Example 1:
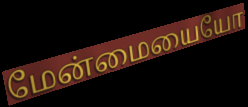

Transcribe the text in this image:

மேன்மையையோ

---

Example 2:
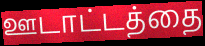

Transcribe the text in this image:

ஊடாட்டத்தை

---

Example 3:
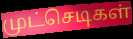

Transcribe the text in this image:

முட்செடிகள்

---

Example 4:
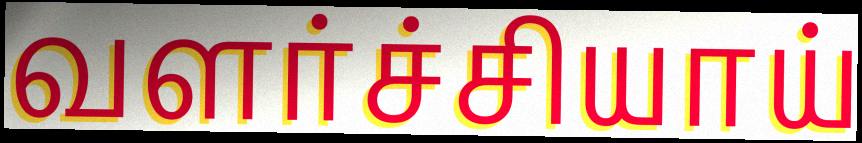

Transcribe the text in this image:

வளர்ச்சியாய்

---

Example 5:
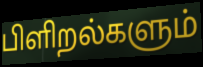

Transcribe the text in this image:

பிளிறல்களும்